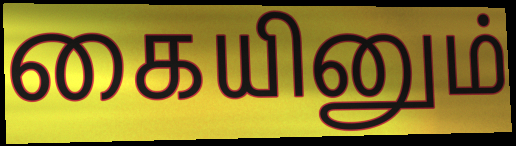
கையினும்